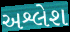
અશ્લેશ